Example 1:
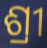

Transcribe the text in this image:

ଶ୍ରୀ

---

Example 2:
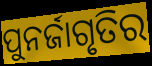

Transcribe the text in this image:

ପୁନର୍ଜାଗୃତିର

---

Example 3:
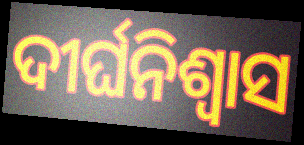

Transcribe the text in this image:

ଦୀର୍ଘନିଶ୍ୱାସ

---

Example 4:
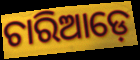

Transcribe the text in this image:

ଚାରିଆଡ଼େ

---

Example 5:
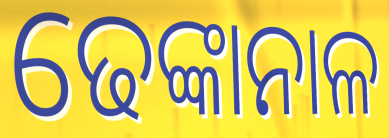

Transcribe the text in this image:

ଢେଙ୍କାନାଳ